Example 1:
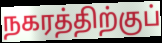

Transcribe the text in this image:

நகரத்திற்குப்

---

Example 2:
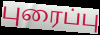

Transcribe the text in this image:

புரைப்பு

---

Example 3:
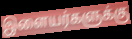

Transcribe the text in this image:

இளையர்களுக்கு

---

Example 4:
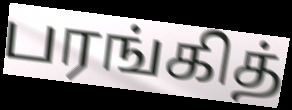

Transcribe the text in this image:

பரங்கித்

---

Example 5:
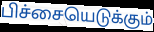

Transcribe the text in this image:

பிச்சையெடுக்கும்